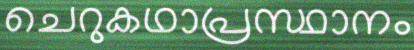
ചെറുകഥാപ്രസ്ഥാനം